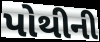
પોથીની